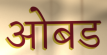
ओबड